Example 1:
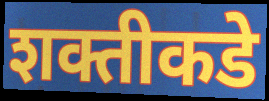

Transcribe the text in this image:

शक्तीकडे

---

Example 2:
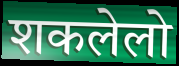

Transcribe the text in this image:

शकलेलो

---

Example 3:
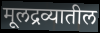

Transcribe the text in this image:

मूलद्रव्यातील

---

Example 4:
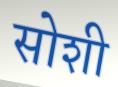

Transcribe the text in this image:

सोशी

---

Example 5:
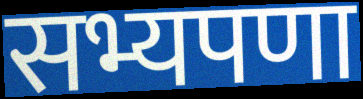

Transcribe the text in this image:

सभ्यपणा